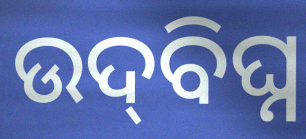
ଉଦ୍‍ବିଘ୍ନ